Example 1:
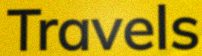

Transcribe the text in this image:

Travels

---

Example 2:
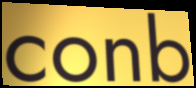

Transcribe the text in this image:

conb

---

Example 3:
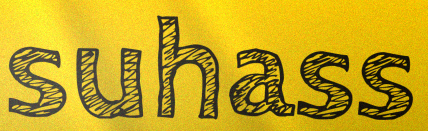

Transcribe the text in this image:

suhass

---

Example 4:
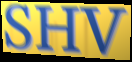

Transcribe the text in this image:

SHV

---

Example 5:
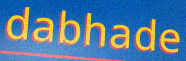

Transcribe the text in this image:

dabhade